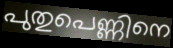
പുതുപെണ്ണിനെ